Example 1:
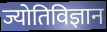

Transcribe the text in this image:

ज्योतिविज्ञान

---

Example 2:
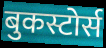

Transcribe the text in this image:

बुकस्टोर्स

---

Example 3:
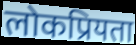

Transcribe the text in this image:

लोकप्रियता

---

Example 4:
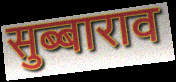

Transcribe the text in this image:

सुब्बाराव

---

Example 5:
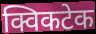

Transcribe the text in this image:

क्विकटेक